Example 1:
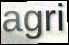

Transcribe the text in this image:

agri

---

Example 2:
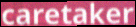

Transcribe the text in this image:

caretaker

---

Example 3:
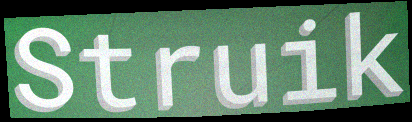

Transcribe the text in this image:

Struik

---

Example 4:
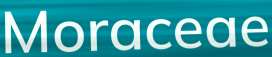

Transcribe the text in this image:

Moraceae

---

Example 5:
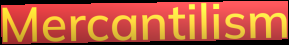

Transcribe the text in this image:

Mercantilism